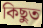
কিছুত